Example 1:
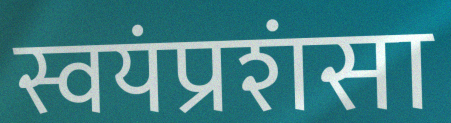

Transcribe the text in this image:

स्वयंप्रशंसा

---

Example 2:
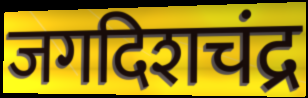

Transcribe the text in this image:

जगदिशचंद्र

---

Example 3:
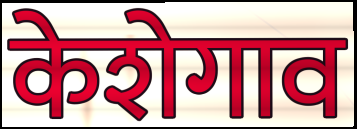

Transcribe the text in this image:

केशेगाव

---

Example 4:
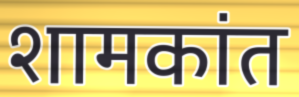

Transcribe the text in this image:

शामकांत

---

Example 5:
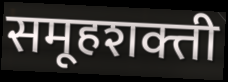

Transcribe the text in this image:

समूहशक्ती